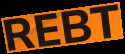
REBT